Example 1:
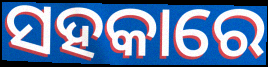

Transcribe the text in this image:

ସହକାରେ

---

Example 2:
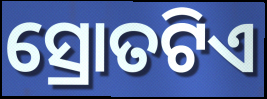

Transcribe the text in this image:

ସ୍ରୋତଟିଏ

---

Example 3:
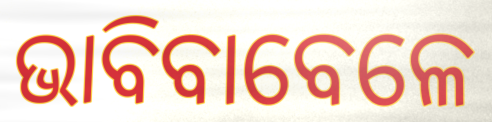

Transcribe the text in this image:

ଭାବିବାବେଳେ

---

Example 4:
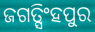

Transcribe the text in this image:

ଜଗତ୍ସିଂହପୁର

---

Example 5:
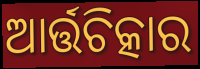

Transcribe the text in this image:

ଆର୍ତ୍ତଚିତ୍କାର